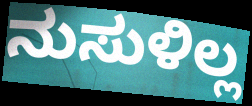
ನುಸುಳಿಲ್ಲ